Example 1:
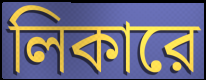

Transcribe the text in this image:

লিকারে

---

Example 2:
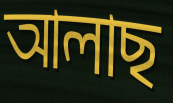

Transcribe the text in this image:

আলাছ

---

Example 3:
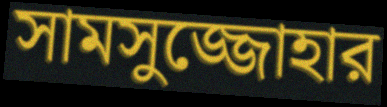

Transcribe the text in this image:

সামসুজ্জোহার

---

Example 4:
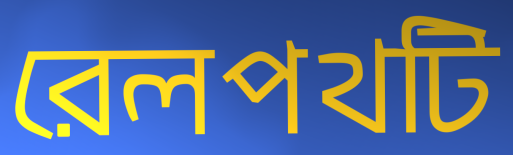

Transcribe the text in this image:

রেলপথটি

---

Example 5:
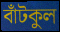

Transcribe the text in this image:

বাঁটকুল